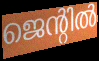
ജെന്റിൽ